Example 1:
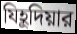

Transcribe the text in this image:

যিহূদিয়ার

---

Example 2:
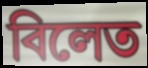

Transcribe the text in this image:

বিলেত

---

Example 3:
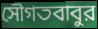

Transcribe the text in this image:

সৌগতবাবুর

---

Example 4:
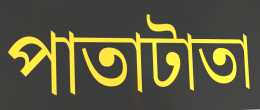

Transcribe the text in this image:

পাতাটাতা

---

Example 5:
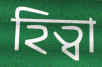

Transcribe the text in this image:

হিত্বা